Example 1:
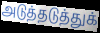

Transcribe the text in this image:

அடுத்தடுத்துக்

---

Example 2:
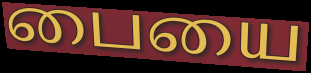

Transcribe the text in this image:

பையை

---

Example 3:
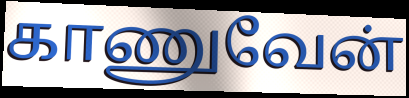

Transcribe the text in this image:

காணுவேன்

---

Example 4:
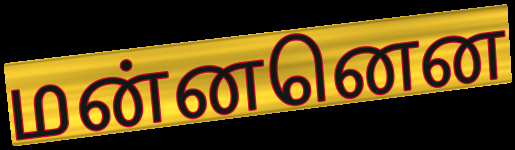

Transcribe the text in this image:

மன்னனென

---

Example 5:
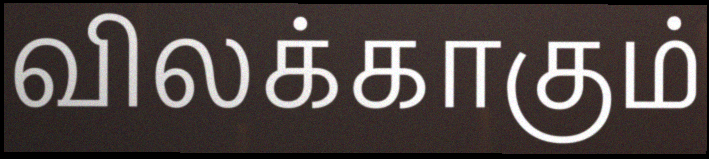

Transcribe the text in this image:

விலக்காகும்